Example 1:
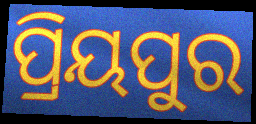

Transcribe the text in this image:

ପ୍ରିୟପୁର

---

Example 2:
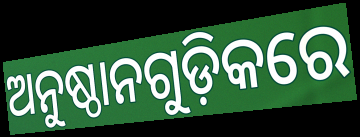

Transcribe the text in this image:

ଅନୁଷ୍ଠାନଗୁଡ଼ିକରେ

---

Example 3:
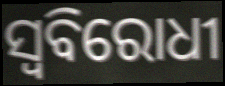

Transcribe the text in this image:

ସ୍ୱବିରୋଧୀ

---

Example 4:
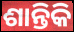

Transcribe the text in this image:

ଶାନ୍ତିକି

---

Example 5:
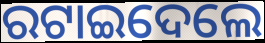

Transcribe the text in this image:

ରଟାଇଦେଲେ